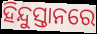
ହିନ୍ଦୁସ୍ତାନରେ